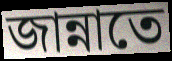
জান্নাতে